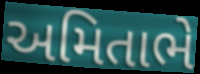
અમિતાભે